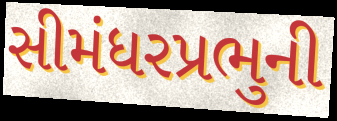
સીમંધરપ્રભુની